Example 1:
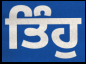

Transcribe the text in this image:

ਤਿੰਹੁ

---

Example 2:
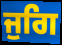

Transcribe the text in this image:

ਜੁਗਿ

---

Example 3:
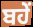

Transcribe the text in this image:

ਬਹੇਂ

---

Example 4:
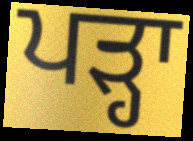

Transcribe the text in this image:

ਪੜ੍ਹਾ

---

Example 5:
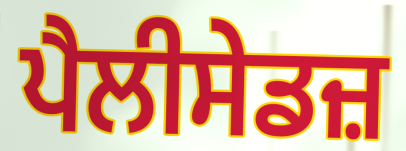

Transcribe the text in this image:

ਪੈਲੀਸੇਡਜ਼